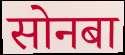
सोनबा